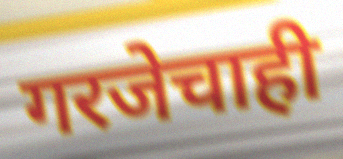
गरजेचाही